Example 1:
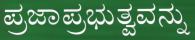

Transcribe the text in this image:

ಪ್ರಜಾಪ್ರಭುತ್ವವನ್ನು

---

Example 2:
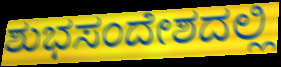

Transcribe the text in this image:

ಶುಭಸಂದೇಶದಲ್ಲಿ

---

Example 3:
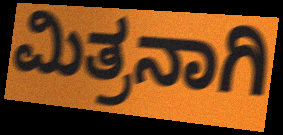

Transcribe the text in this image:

ಮಿತ್ರನಾಗಿ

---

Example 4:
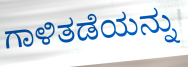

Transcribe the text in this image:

ಗಾಳಿತಡೆಯನ್ನು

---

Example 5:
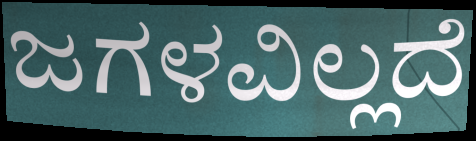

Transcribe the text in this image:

ಜಗಳವಿಲ್ಲದೆ